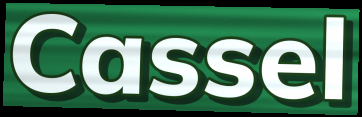
Cassel